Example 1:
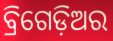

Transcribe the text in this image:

ବ୍ରିଗେଡ଼ିଅର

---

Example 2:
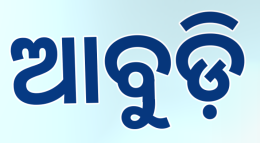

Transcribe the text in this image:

ଆବୁଡ଼ି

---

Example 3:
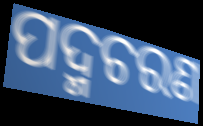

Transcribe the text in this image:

ପଦ୍ମଚରଣ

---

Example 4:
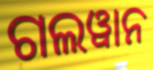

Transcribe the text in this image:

ଗଲୱାନ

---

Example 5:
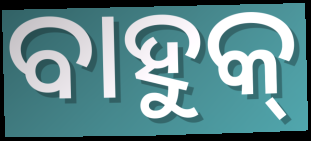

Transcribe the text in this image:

ବାହୁକ୍